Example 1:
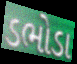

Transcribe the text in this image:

ડભોડા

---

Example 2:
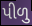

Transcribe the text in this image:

પીળુ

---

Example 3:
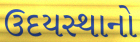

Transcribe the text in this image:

ઉદયસ્થાનો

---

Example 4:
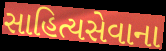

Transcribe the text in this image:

સાહિત્યસેવાના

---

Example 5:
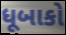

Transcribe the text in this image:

ધૂબાકો